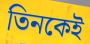
তিনকেই